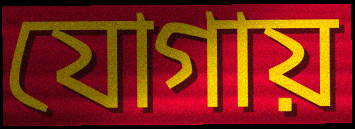
যোগায়